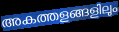
അകത്തളങ്ങളിലും